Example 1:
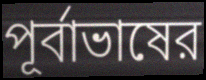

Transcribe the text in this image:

পূর্বাভাষের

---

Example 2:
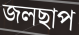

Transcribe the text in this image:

জলছাপ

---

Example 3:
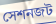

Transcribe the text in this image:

সেশনজট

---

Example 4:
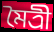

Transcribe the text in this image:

মৈত্রী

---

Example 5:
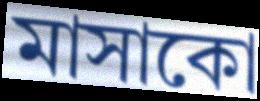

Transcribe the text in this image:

মাসাকো